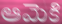
ఆమెకి